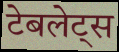
टेबलेट्स